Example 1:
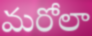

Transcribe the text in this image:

మరోలా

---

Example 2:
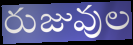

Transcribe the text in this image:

రుజువుల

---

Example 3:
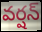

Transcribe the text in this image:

వర్షన్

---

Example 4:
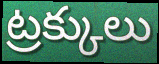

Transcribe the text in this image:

ట్రక్కులు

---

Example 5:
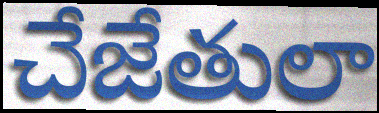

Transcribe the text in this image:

చేజేతులా